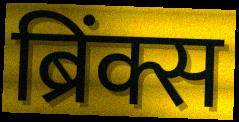
ब्रिंक्स